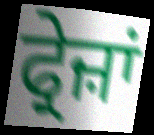
ਫ੍ਰੇਜ਼ਾਂ